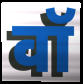
वॉ